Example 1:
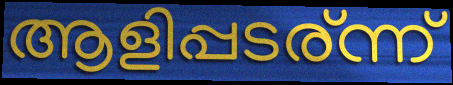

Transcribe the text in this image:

ആളിപ്പടര്ന്ന്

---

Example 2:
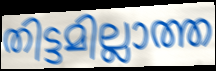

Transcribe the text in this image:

തിട്ടമില്ലാത്ത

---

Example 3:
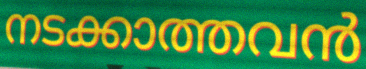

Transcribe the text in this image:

നടക്കാത്തവൻ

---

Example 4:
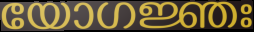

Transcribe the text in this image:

യോഗജ്ഞഃ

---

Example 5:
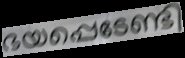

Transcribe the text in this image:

ഭയപ്പെടേണ്ടി